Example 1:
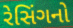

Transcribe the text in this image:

રેસિંગનો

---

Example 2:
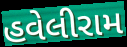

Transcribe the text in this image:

હવેલીરામ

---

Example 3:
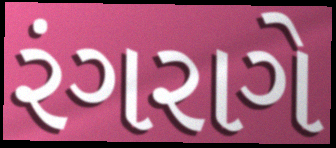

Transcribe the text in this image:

રંગરાગે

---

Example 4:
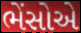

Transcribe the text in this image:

ભેંસોએ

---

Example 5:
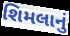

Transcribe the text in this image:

શિમલાનું